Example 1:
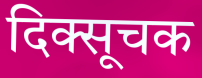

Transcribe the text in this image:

दिक्सूचक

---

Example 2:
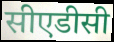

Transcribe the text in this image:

सीएडीसी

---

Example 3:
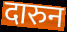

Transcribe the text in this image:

दारुन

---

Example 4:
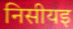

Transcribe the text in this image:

निसीयइ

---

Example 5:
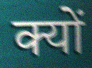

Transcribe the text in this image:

क्‍यों